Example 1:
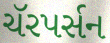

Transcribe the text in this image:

ચૅરપર્સન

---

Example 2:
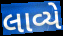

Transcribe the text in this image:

લાવ્યે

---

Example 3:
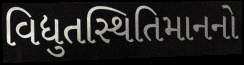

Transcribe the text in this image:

વિદ્યુતસ્થિતિમાનનો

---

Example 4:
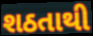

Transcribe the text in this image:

શઠતાથી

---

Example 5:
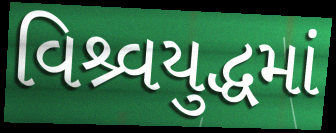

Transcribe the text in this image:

વિશ્ર્વયુદ્ધમાં